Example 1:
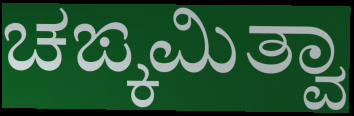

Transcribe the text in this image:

ಚಙ್ಕಮಿತ್ವಾ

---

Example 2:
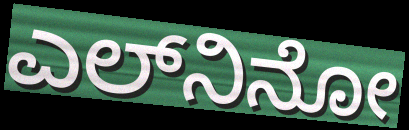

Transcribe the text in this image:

ಎಲ್‍ನಿನೋ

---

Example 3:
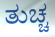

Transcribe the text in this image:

ತುಚ್ಚ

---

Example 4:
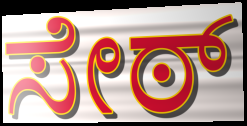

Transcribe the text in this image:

ಸೇಠ್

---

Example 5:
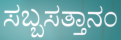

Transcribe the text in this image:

ಸಬ್ಬಸತ್ತಾನಂ